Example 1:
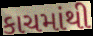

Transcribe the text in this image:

કાચમાંથી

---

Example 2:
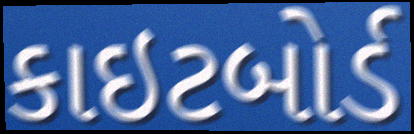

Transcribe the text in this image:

કાઇટબોર્ડ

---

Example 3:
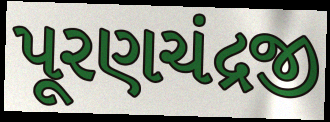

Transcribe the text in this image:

પૂરણચંદ્રજી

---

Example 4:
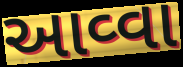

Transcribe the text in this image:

આવ્વા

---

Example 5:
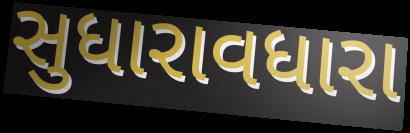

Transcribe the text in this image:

સુધારાવધારા